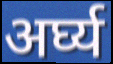
अर्घ्य